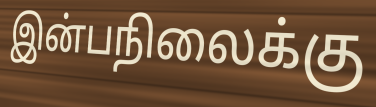
இன்பநிலைக்கு